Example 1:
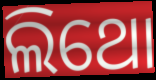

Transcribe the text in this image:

ଲିଥୋ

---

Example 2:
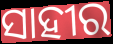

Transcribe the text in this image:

ସାହୀର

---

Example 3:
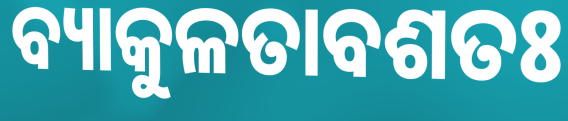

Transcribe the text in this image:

ବ୍ୟାକୁଳତାବଶତଃ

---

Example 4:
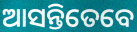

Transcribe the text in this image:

ଆସନ୍ତିତେବେ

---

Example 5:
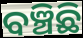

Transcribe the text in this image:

ବଞ୍ଚିଛି